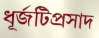
ধূর্জটিপ্রসাদ